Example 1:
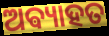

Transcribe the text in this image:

ଅଵ୍ୟାହତ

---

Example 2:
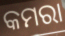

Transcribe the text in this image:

କମରା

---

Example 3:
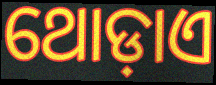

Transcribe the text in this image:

ଥୋଡ଼ାଏ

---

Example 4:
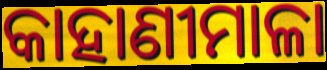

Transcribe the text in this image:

କାହାଣୀମାଳା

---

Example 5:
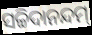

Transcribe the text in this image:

ସଚ୍ଚିଦାନନ୍ଦମ୍